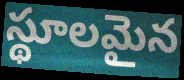
స్థూలమైన